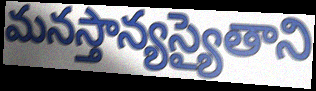
మనస్తాన్యస్యైతాని